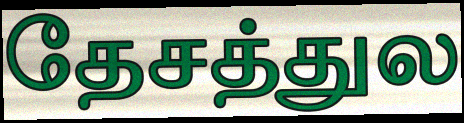
தேசத்துல